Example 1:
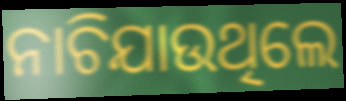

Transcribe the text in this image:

ନାଚିଯାଉଥିଲେ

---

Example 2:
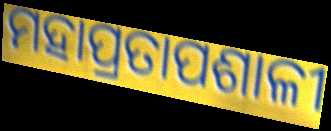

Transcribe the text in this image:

ମହାପ୍ରତାପଶାଳୀ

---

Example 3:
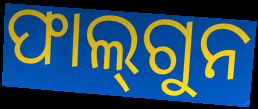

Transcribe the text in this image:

ଫାଲ୍‍ଗୁନ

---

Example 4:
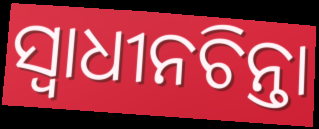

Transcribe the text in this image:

ସ୍ୱାଧୀନଚିନ୍ତା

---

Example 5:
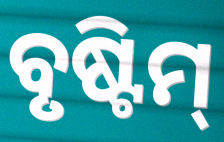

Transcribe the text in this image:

ବୃଷ୍ଟିମ୍